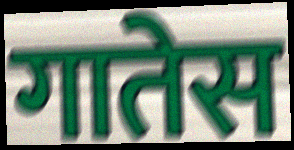
गातेस